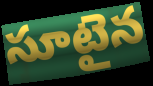
సూటైన